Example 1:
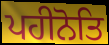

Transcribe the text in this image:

ਪਹੀਨੋਤਿ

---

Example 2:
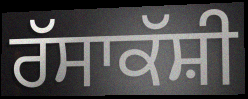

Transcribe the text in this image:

ਰੱਸਾਕੱਸ਼ੀ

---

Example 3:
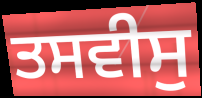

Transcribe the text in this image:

ਤਸਵੀਸੁ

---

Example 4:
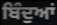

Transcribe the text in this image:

ਬਿੰਦੁਆਂ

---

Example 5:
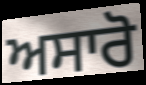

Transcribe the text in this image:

ਅਸਾਰੋ